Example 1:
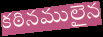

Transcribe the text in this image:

కఠినములైన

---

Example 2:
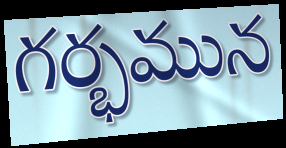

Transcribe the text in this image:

గర్భమున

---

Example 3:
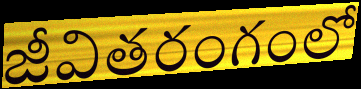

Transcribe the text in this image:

జీవితరంగంలో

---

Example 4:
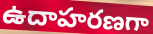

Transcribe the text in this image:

ఉదాహరణగా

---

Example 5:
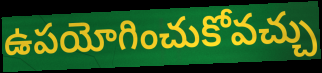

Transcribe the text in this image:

ఉపయోగించుకోవచ్చు